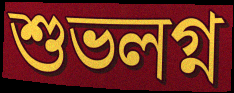
শুভলগ্ন